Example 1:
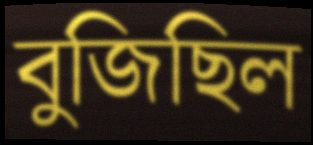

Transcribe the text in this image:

বুজিছিল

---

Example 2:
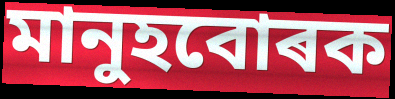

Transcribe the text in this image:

মানুহবোৰক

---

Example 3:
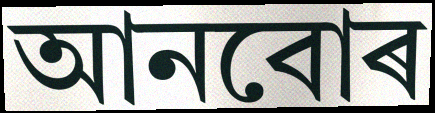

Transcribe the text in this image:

আনবোৰ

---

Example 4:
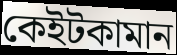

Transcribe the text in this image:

কেইটকামান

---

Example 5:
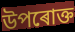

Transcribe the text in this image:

উপৰোক্ত